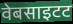
वेबसाइटट